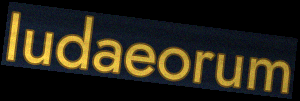
Iudaeorum